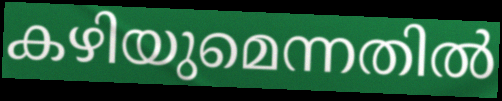
കഴിയുമെന്നതിൽ